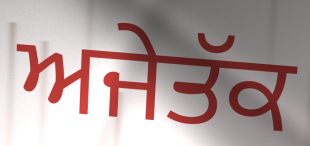
ਅਜੇਤੱਕ